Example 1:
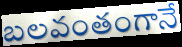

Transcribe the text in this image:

బలవంతంగానే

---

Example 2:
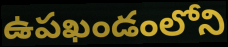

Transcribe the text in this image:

ఉపఖండంలోని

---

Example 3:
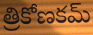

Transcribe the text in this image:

త్రికోణకమ్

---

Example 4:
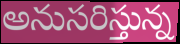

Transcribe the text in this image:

అనుసరిస్తున్న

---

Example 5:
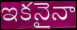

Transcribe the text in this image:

ఇకనైనా